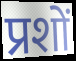
प्रशों